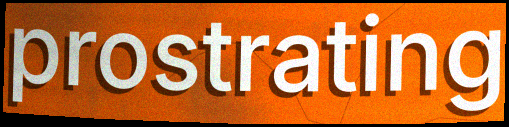
prostrating